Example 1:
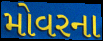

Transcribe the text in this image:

મોવરના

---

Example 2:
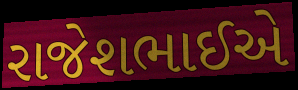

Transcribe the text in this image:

રાજેશભાઈએ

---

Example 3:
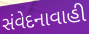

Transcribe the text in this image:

સંવેદનાવાહી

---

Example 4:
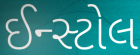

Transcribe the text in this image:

ઈન્સ્ટોલ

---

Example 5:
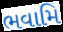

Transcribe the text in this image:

ભવામિ